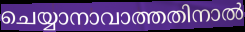
ചെയ്യാനാവാത്തതിനാൽ